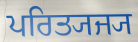
ਪਰਿਤ੍ਯਜ੍ਯ